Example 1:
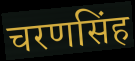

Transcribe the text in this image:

चरणसिंह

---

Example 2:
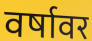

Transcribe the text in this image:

वर्षावर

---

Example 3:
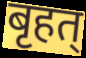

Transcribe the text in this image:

बृहत्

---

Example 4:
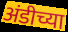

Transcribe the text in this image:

अंडीच्या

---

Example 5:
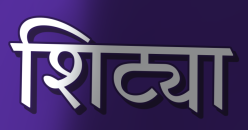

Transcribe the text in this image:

शिट्या